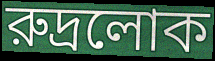
রুদ্রলোক